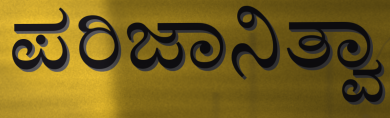
ಪರಿಜಾನಿತ್ವಾ